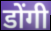
डोंगी